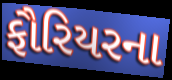
ફૌરિયરના